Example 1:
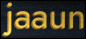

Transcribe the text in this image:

jaaun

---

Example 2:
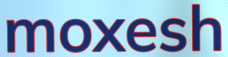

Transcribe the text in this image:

moxesh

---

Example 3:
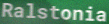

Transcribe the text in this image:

Ralstonia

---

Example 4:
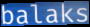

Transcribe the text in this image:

balaks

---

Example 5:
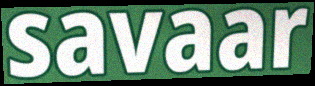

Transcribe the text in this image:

savaar